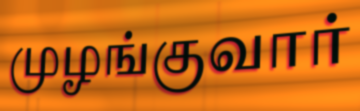
முழங்குவார்